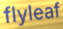
flyleaf